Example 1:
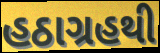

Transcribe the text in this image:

હઠાગ્રહથી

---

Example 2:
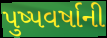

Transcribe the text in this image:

પુષ્પવર્ષાની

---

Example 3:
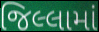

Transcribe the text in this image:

જિલ્લામાં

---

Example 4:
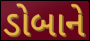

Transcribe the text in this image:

ડોબાને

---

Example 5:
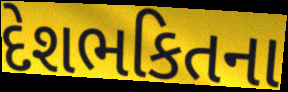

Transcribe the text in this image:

દેશભકિતના